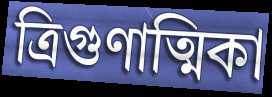
ত্রিগুণাত্মিকা